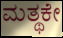
ಮತ್ಥಕೇ